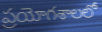
ప్రయోగశాలలో